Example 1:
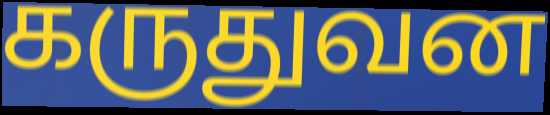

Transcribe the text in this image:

கருதுவன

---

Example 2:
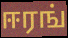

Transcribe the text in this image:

ஈரங்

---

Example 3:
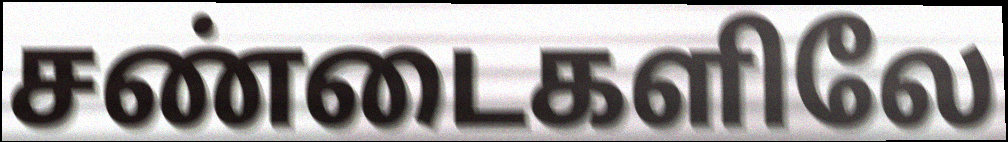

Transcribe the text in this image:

சண்டைகளிலே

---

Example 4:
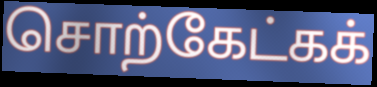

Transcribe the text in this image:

சொற்கேட்கக்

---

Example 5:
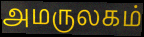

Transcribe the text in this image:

அமருலகம்